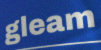
gleam